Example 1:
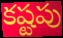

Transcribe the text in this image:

కష్టపు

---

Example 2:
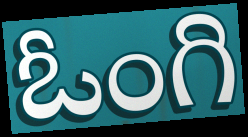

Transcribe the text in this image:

ఓంగి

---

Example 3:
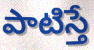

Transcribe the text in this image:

పాటిస్తే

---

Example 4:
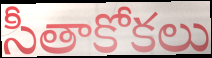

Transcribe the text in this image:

సీతాకోకలు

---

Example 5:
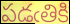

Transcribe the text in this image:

పడఁతికి